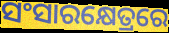
ସଂସାରକ୍ଷେତ୍ରରେ